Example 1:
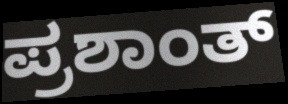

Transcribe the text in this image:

ಪ್ರಶಾಂತ್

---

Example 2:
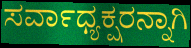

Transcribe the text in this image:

ಸರ್ವಾಧ್ಯಕ್ಷರನ್ನಾಗಿ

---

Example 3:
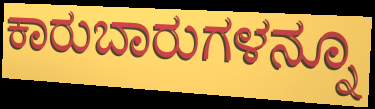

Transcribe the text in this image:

ಕಾರುಬಾರುಗಳನ್ನೂ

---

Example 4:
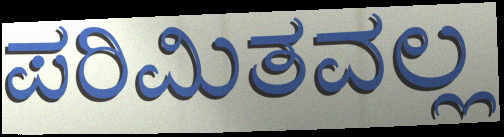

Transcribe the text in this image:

ಪರಿಮಿತವಲ್ಲ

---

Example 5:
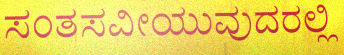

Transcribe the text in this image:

ಸಂತಸವೀಯುವುದರಲ್ಲಿ